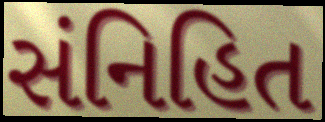
સંનિહિત